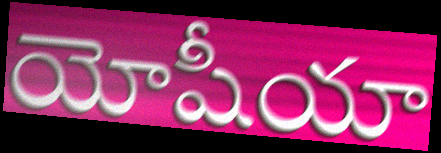
యోషీయా